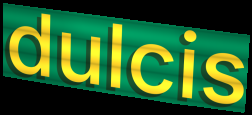
dulcis